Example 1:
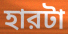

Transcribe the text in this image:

হারটা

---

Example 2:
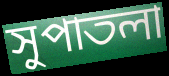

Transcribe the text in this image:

সুপাতলা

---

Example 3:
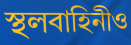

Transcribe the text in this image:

স্থলবাহিনীও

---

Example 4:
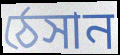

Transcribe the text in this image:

ঠেসান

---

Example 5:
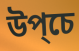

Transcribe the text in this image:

উপ্চে